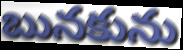
బునకును